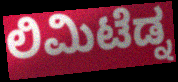
ಲಿಮಿಟೆಡ್ನ